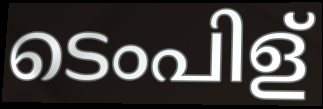
ടെംപിള്